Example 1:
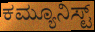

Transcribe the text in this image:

ಕಮ್ಯೂನಿಸ್ಟ್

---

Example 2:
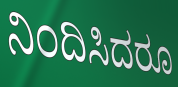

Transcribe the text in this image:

ನಿಂದಿಸಿದರೂ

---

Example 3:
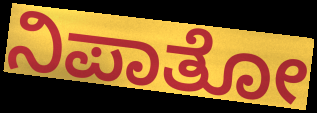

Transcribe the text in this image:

ನಿಪಾತೋ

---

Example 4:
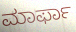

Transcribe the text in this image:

ಮಾರ್ಫಾ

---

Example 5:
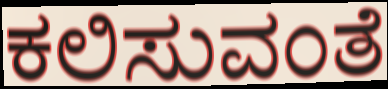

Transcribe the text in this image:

ಕಲಿಸುವಂತೆ